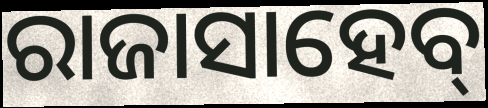
ରାଜାସାହେବ୍